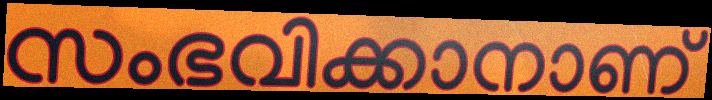
സംഭവിക്കാനാണ്